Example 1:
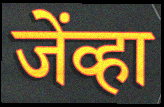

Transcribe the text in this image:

जेंव्हा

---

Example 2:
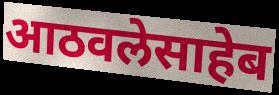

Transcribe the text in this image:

आठवलेसाहेब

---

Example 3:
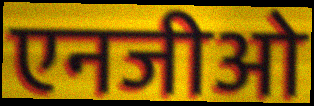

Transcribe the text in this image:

एनजीओ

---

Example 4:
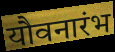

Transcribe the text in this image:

यौवनारंभ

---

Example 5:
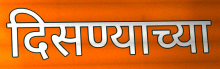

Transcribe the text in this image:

दिसण्याच्या